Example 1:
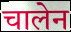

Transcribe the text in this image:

चालेन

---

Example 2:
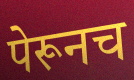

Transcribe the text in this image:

पेरूनच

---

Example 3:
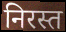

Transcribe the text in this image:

निरस्त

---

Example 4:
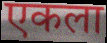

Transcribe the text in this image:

एकला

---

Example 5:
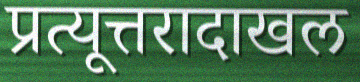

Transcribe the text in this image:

प्रत्यूत्तरादाखल